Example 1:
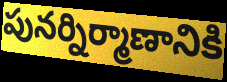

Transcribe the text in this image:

పునర్నిర్మాణానికి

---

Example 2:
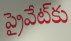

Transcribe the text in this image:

ప్రైవేట్‌కు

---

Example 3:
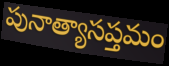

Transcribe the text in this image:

పునాత్యాసప్తమం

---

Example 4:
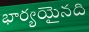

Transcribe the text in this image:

భార్యయైనది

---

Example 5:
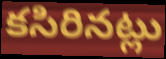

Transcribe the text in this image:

కసిరినట్లు